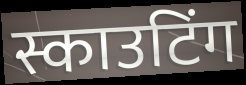
स्काउटिंग